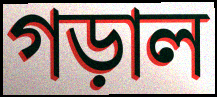
গড়াল